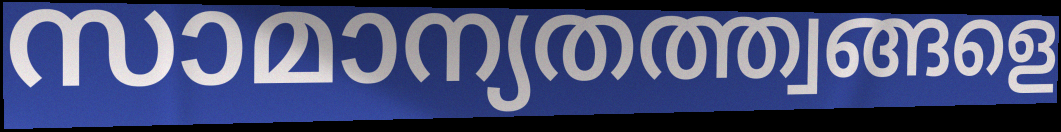
സാമാന്യതത്ത്വങ്ങളെ